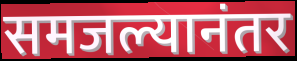
समजल्यानंतर